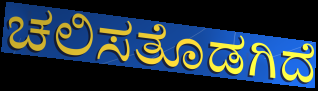
ಚಲಿಸತೊಡಗಿದೆ